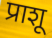
प्राशू